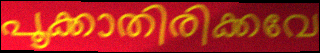
പൂക്കാതിരിക്കവേ